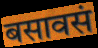
बसावसं